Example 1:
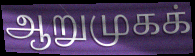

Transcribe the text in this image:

ஆறுமுகக்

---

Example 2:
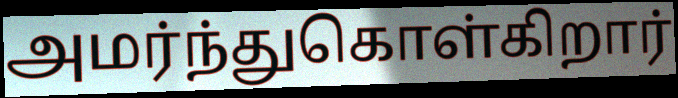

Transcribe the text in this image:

அமர்ந்துகொள்கிறார்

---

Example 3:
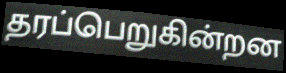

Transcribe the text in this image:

தரப்பெறுகின்றன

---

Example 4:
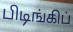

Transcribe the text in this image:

பிடிங்கிப்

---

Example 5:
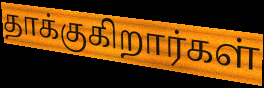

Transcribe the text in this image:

தாக்குகிறார்கள்